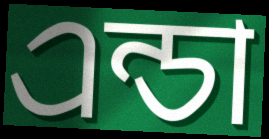
এন্ডা